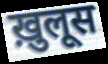
ख़ुलूस